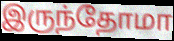
இருந்தோமா